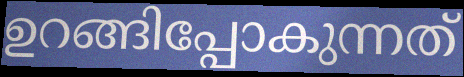
ഉറങ്ങിപ്പോകുന്നത്